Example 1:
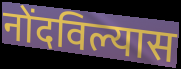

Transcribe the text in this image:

नोंदविल्यास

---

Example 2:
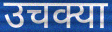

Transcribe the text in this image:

उचक्या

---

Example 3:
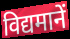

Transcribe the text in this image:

विद्यमानें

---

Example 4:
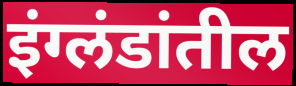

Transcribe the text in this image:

इंग्लंडांतील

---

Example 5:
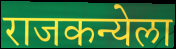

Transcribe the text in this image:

राजकन्येला